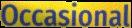
Occasional